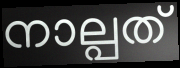
നാല്പത്